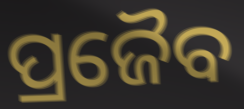
ପ୍ରଜୈବ